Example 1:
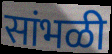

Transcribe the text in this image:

सांभळी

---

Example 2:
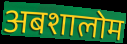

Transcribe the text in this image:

अबशालोम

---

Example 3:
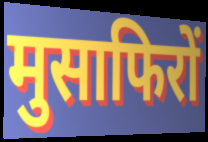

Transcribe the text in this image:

मुसाफिरों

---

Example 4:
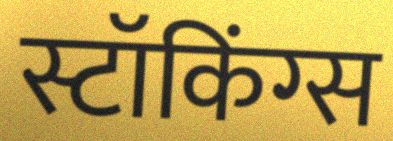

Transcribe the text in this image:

स्टॉकिंग्स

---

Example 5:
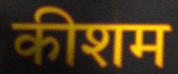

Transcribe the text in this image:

कीशम